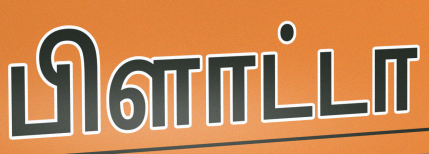
பிளாட்டா